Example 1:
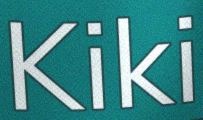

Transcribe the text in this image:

Kiki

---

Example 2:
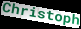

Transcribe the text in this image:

Christoph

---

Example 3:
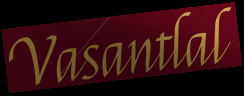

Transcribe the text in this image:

Vasantlal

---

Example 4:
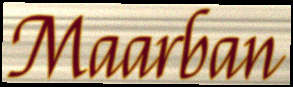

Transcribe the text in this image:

Maarban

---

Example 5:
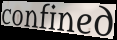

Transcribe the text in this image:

confined